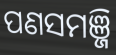
ପଣସମଞ୍ଜି